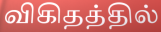
விகிதத்தில்